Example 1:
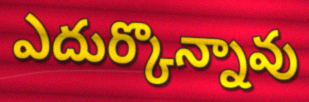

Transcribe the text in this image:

ఎదుర్కొన్నావు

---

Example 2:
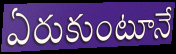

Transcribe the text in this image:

ఏరుకుంటూనే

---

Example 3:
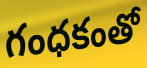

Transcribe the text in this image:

గంధకంతో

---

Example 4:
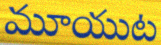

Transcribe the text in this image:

మూయుట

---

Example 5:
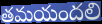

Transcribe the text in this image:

తమయందలి